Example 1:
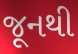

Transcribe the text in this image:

જૂનથી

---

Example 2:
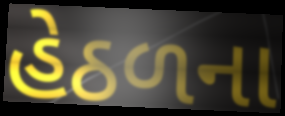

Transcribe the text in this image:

હેઠળના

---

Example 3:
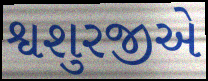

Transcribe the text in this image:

શ્વશુરજીએ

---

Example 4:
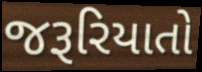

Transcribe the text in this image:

જરૂરિયાતો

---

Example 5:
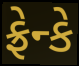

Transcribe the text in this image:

ફ્રેન્કે